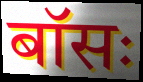
बॉसः